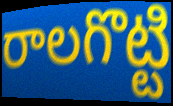
రాలగొట్టి